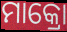
ମାକ୍ରୋ